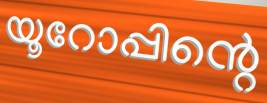
യൂറോപ്പിന്റെ